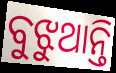
ବୁଝୁଥାନ୍ତି